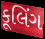
કૂલિંગ